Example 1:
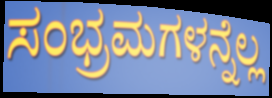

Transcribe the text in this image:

ಸಂಭ್ರಮಗಳನ್ನೆಲ್ಲ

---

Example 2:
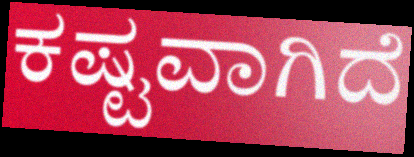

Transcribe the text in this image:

ಕಷ್ಟವಾಗಿದೆ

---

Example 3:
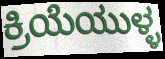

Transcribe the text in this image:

ಕ್ರಿಯೆಯುಳ್ಳ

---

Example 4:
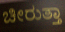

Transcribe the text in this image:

ಚೀರುತ್ತಾ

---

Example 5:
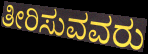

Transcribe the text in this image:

ತೀರಿಸುವವರು